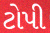
ટોપી